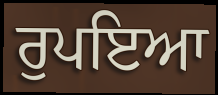
ਰੁਪਇਆ